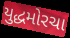
યુદ્ધમોરચા